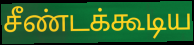
சீண்டக்கூடிய